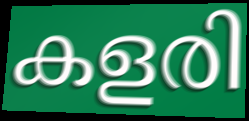
കളരി